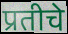
प्रतीचे